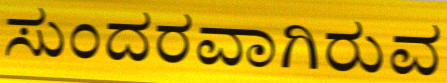
ಸುಂದರವಾಗಿರುವ